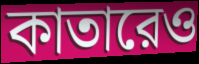
কাতারেও